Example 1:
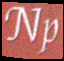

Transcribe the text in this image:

Np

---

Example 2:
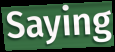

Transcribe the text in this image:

Saying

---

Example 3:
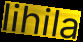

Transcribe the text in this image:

lihila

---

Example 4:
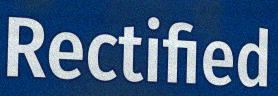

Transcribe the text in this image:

Rectified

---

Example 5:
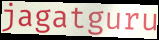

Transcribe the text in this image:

jagatguru